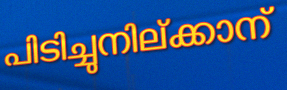
പിടിച്ചുനില്ക്കാന്